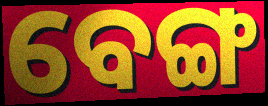
ବେଙ୍ଗ